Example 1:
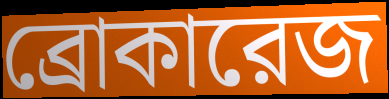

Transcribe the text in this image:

ব্রোকারেজ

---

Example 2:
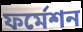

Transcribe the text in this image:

ফর্মেশন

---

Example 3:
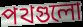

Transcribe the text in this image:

পথগুলো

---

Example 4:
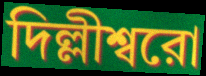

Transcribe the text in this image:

দিল্লীশ্বরো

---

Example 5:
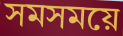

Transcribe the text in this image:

সমসময়ে